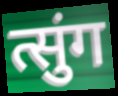
त्सुंग